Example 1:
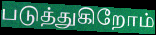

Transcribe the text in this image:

படுத்துகிறோம்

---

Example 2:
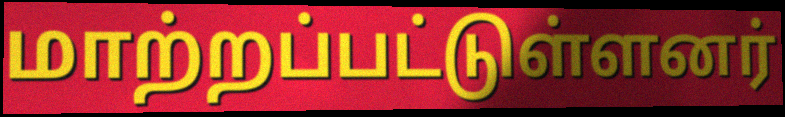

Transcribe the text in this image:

மாற்றப்பட்டுள்ளனர்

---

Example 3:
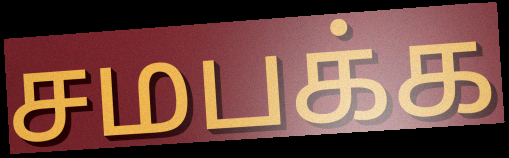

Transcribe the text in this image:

சமபக்க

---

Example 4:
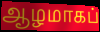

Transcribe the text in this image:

ஆழமாகப்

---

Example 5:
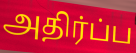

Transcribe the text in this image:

அதிர்ப்ப